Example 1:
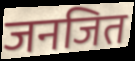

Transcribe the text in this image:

जनजित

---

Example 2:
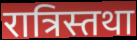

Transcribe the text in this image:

रात्रिस्तथा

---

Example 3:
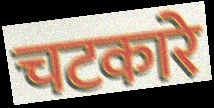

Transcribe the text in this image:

चटकारे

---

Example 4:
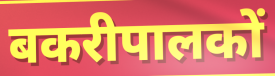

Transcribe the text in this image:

बकरीपालकों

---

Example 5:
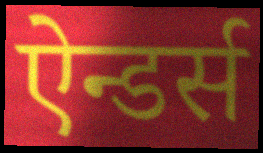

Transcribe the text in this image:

ऐन्डर्स